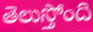
తెలుస్తోంది